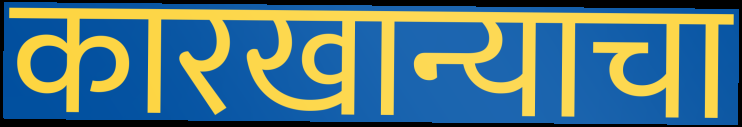
कारखान्याचा